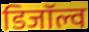
डिजॉल्व